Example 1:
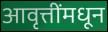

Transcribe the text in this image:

आवृत्तींमधून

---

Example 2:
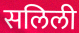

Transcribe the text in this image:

सलिली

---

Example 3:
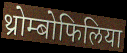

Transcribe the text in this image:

थ्रोम्बोफिलिया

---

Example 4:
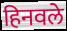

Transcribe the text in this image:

हिनवले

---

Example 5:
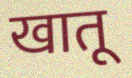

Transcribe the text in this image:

खातू